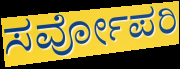
ಸರ್ವೋಪರಿ